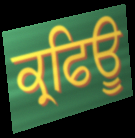
ਕ੍ਰਫਿਊ